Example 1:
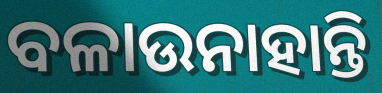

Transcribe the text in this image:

ବଳାଉନାହାନ୍ତି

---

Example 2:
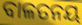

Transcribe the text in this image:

ବାଳତନୟ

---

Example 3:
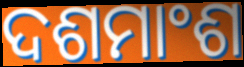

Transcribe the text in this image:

ଦଶମାଂଶ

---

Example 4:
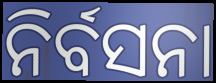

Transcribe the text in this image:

ନିର୍ବସନା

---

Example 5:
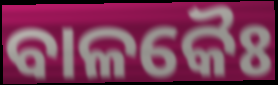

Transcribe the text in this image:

ବାଳକୈଃ